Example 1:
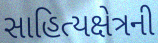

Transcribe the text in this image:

સાહિત્યક્ષેત્રની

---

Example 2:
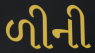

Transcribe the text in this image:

ળીની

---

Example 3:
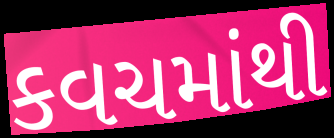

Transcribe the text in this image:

કવચમાંથી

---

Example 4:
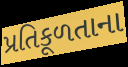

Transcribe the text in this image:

પ્રતિકૂળતાના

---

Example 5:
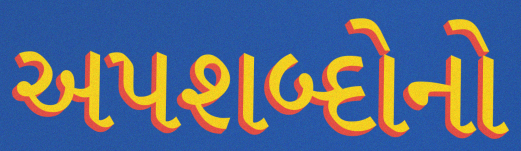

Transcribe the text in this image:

અપશબ્દોનો